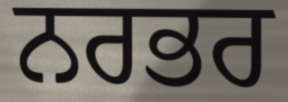
ਨਰਭਰ